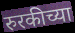
रुरकीच्या